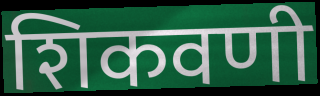
शिकवणी